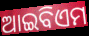
ଆଇବିଏମ